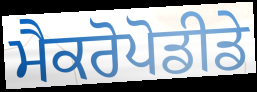
ਮੈਕਰੋਪੋਡੀਡੇ